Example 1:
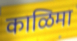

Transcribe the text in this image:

काळिमा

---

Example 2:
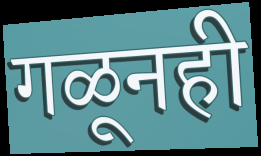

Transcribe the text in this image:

गळूनही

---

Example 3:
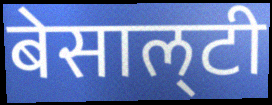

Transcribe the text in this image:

बेसाल्टी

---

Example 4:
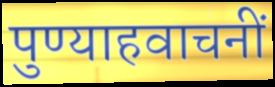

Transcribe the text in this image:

पुण्याहवाचनीं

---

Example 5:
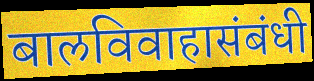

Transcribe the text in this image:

बालविवाहासंबंधी